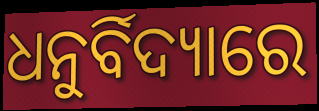
ଧନୁର୍ବିଦ୍ୟାରେ